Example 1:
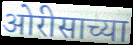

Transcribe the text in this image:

ओरीसाच्या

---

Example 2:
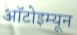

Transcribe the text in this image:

ऑटोइम्यून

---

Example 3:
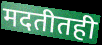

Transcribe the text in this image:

मदतीतही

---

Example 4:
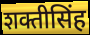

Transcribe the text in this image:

शक्तीसिंह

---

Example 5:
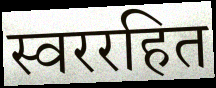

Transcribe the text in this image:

स्वररहित